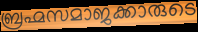
ബ്രഹ്മസമാജക്കാരുടെ